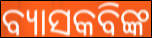
ବ୍ୟାସକବିଙ୍କ